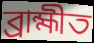
ব্ৰাহ্মীত